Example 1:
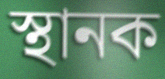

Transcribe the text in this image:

স্থানক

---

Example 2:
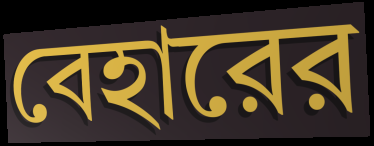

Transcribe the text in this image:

বেহারের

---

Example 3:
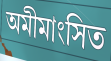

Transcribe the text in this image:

অমীমাংসিত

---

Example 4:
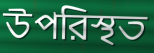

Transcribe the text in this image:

উপরিস্থত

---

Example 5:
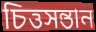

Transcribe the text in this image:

চিত্তসন্তান